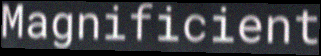
Magnificient